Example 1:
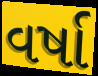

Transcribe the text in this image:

વર્ષા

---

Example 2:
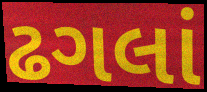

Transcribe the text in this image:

ઢગલાં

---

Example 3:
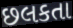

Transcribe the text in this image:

છલકતા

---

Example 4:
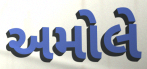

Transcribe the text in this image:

અમોલે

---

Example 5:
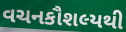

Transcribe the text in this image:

વચનકૌશલ્યથી